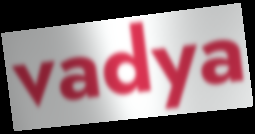
vadya